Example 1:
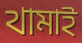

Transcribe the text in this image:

থামাই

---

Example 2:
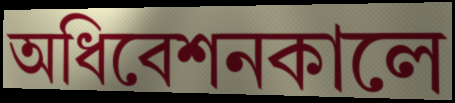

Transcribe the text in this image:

অধিবেশনকালে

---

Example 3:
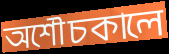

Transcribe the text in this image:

অশৌচকালে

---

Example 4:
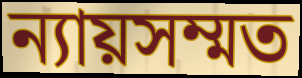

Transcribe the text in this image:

ন্যায়সম্মত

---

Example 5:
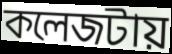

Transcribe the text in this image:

কলেজটায়